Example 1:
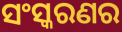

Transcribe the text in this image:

ସଂସ୍କରଣର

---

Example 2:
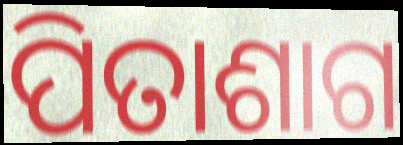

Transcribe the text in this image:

ପିତାଶାଗ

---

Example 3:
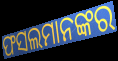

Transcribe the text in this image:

ଫସଲମାନଙ୍କର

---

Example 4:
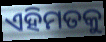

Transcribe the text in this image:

ଏହିମତକୁ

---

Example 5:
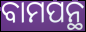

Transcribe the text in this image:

ବାମପନ୍ଥ